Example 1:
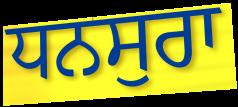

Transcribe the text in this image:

ਧਨਸੁਰਾ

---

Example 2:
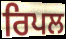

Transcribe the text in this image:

ਰਿਪਲ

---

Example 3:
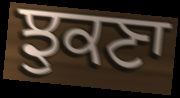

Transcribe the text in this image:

ਝੁਕਣਾ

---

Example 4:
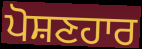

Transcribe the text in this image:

ਪੋਸ਼ਣਹਾਰ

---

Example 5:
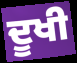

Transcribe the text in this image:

ਦੂਖੀ